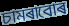
চামৰাবোৰ